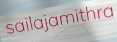
sailajamithra